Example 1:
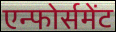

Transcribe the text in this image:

एन्फोर्समेंट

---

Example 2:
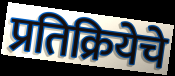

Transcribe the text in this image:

प्रतिक्रियेचे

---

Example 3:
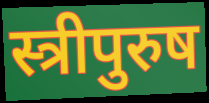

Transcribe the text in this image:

स्त्रीपुरुष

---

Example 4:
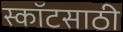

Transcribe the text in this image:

स्कॉटसाठी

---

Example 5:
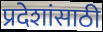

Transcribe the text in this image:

प्रदेशांसाठी